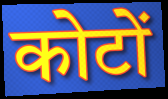
कोटों